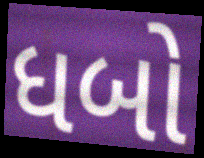
ધબો